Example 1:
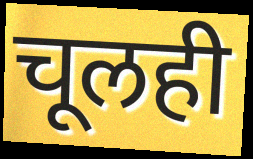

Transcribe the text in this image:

चूलही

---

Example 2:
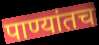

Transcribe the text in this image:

पाण्यांतच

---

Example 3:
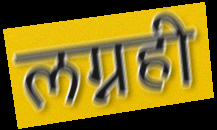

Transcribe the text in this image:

लग्नही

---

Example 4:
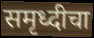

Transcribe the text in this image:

समृध्दीचा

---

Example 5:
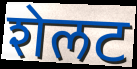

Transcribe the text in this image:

शेलट